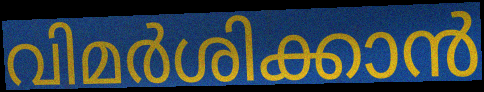
വിമർശിക്കാൻ